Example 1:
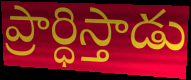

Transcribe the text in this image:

ప్రార్ధిస్తాడు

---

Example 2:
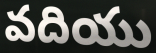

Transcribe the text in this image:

వదియు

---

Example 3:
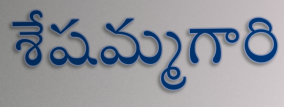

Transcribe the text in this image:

శేషమ్మగారి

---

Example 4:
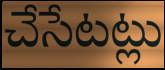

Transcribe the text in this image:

చేసేటట్లు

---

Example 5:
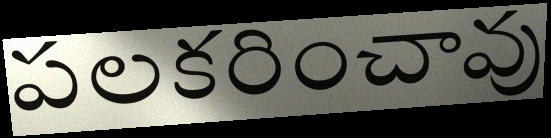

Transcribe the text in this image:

పలకరించావు